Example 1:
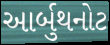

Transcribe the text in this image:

આર્બુથનોટ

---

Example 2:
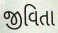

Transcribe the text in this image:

જીવિતા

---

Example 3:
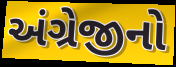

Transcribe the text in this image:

અંગ્રેજીનો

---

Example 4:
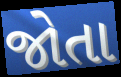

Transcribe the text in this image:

જોતા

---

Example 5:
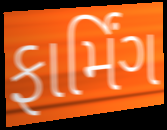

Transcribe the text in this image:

ફાર્મિંગ